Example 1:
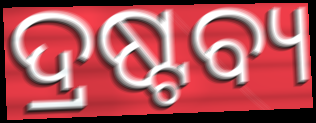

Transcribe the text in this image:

ଦ୍ରଷ୍ଟବ୍ୟ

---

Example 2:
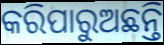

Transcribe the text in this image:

କରିପାରୁଅଛନ୍ତି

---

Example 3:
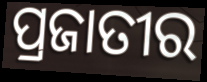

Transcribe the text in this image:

ପ୍ରଜାତୀର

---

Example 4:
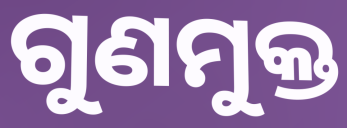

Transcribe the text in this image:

ଗୁଣମୁକ୍ତ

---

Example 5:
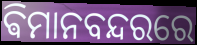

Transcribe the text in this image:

ଵିମାନବନ୍ଦରରେ